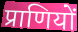
प्राणियों